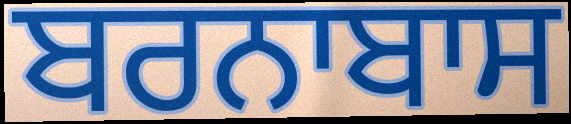
ਬਰਨਾਬਾਸ